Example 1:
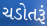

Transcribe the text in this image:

ચડોતરૂં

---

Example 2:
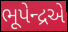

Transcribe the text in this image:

ભૂપેન્દ્રએ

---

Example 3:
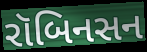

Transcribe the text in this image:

રૉબિનસન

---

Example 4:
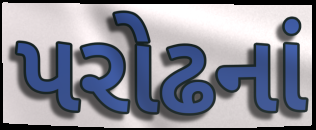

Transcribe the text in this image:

પરોઢનાં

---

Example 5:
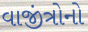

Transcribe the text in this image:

વાજીંત્રોનો